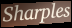
Sharples